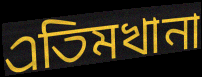
এতিমখানা